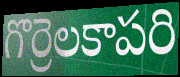
గొర్రెలకాపరి